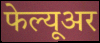
फेल्यूअर